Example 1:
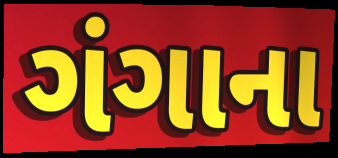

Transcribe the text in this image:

ગંગાના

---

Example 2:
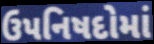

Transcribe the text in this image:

ઉપનિષદોમાં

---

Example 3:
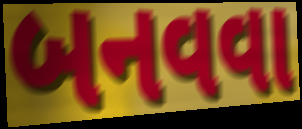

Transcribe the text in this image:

બનવવા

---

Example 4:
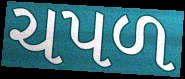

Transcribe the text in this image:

ચપળ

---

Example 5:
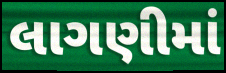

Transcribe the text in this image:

લાગણીમાં